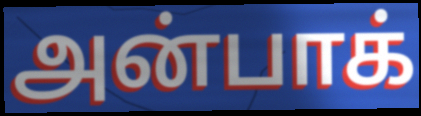
அன்பாக்